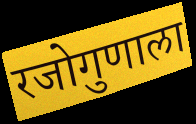
रजोगुणाला